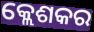
କ୍ଲେଶକର